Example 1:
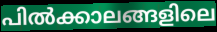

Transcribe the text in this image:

പിൽക്കാലങ്ങളിലെ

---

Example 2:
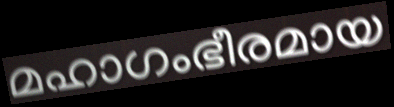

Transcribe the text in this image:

മഹാഗംഭീരമായ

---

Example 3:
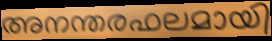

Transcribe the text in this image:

അനന്തരഫലമായി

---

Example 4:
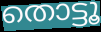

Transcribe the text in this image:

തൊട്ടൂ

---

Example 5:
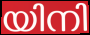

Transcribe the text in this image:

യിനി